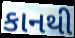
કાનથી